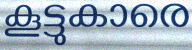
കൂട്ടുകാരെ